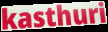
kasthuri